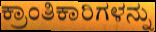
ಕ್ರಾಂತಿಕಾರಿಗಳನ್ನು